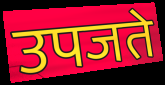
उपजते